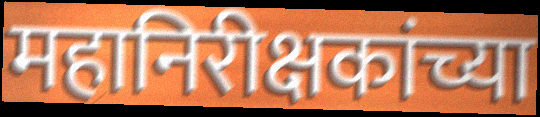
महानिरीक्षकांच्या